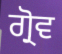
ਗ੍ਰੋਵ